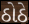
ઠોઠે